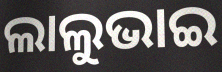
ଲାଲୁଭାଇ